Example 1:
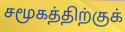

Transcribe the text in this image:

சமூகத்திற்குக்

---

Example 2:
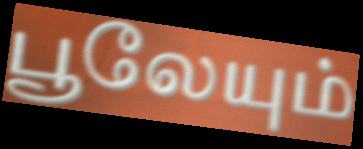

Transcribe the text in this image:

பூலேயும்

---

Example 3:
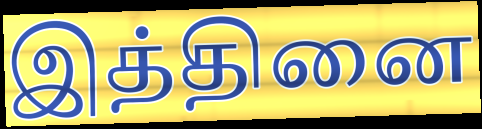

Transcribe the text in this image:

இத்தினை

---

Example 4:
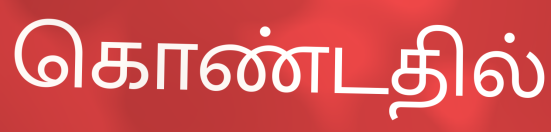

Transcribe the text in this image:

கொண்டதில்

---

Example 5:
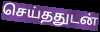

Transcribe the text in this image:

செய்ததுடன்